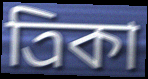
ত্রিকা